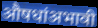
औषधांअभावी